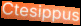
Ctesippus